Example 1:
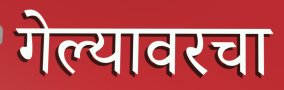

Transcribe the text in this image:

गेल्यावरचा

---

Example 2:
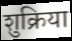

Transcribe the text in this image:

शुक्रिया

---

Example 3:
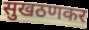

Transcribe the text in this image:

सुखठणकर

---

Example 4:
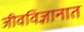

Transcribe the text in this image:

जीवविज्ञानात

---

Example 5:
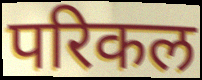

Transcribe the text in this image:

परिकल